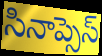
సినాప్సెస్